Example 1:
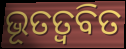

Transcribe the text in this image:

ଭୂତତ୍ଵବିତ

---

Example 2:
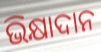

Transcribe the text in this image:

ଭିକ୍ଷାଦାନ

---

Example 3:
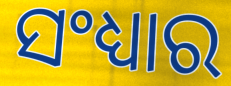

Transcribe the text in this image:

ସଂଧ୍ୟାର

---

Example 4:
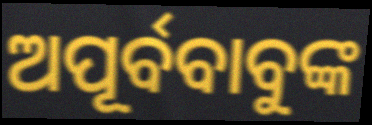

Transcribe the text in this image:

ଅପୂର୍ବବାବୁଙ୍କ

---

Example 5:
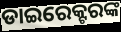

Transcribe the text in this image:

ଡାଇରେକ୍ଟରଙ୍କ